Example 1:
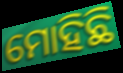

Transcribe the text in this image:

ମୋହିଛି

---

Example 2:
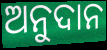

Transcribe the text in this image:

ଅନୁଦାନ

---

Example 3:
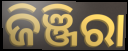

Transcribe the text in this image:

ଜିଞ୍ଜିରା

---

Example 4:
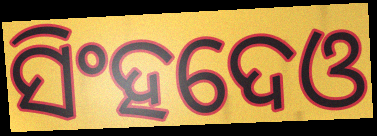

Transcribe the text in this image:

ସିଂହଦେଓ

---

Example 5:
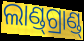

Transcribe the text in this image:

ଲାଣ୍ଡ୍‍ଗ୍ରାଣ୍ଡ୍